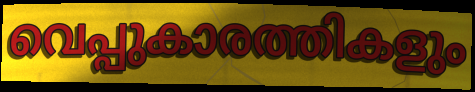
വെപ്പുകാരത്തികളും